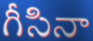
గీసినా